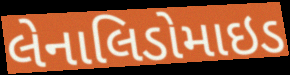
લેનાલિડોમાઇડ